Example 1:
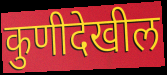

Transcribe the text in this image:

कुणीदेखील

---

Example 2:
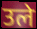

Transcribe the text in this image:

उले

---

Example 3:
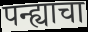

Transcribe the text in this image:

पन्ह्याचा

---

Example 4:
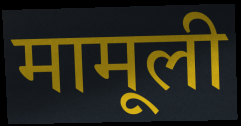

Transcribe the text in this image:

मामूली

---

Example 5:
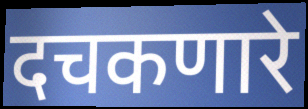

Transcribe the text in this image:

दचकणारे